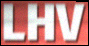
LHV